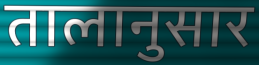
तालानुसार